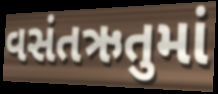
વસંતઋતુમાં